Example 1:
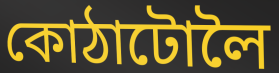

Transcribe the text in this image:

কোঠাটোলৈ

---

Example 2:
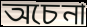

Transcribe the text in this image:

অচেনা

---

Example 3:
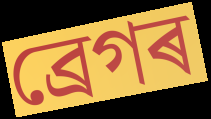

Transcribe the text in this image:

ব্ৰেগৰ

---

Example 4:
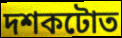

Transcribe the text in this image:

দশকটোত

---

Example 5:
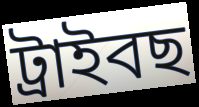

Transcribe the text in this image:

ট্ৰাইবছ